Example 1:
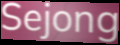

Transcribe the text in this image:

Sejong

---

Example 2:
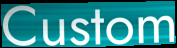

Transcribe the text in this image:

Custom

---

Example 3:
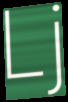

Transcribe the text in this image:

Lj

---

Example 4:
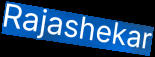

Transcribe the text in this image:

Rajashekar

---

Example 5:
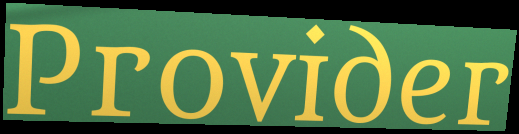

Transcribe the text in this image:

Provider